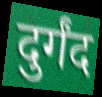
दुर्गंद